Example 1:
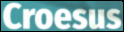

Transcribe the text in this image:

Croesus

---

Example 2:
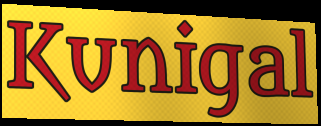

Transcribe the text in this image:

Kunigal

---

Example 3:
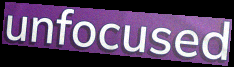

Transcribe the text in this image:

unfocused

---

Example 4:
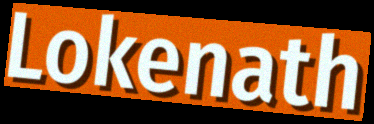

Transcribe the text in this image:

Lokenath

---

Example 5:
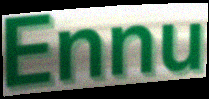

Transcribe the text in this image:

Ennu